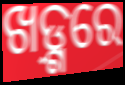
ଖଡ଼୍ଗରେ